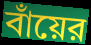
বাঁয়ের